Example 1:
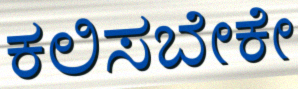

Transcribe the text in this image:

ಕಲಿಸಬೇಕೇ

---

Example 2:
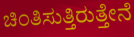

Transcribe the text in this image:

ಚಿಂತಿಸುತ್ತಿರುತ್ತೇನೆ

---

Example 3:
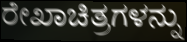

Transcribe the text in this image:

ರೇಖಾಚಿತ್ರಗಳನ್ನು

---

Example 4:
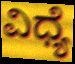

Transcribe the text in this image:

ವಿಧ್ಯೆ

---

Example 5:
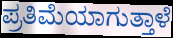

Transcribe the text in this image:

ಪ್ರತಿಮೆಯಾಗುತ್ತಾಳೆ